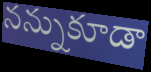
నన్నుకూడా